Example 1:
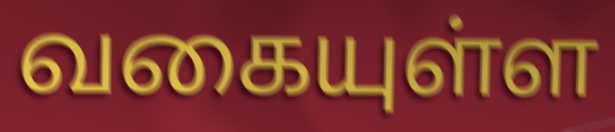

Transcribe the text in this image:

வகையுள்ள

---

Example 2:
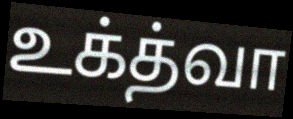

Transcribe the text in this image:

உக்த்வா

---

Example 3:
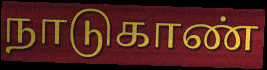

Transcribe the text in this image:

நாடுகாண்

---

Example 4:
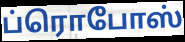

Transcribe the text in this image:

ப்ரொபோஸ்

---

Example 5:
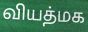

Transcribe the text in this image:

வியத்மக